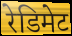
रेडिमेट